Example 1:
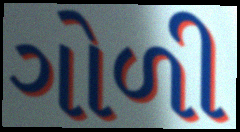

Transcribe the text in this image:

ગોળી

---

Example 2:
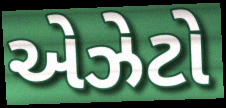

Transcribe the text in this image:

એઝેટો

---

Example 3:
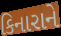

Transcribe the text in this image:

કિનારાને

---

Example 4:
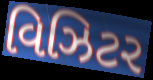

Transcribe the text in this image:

વિઝિટર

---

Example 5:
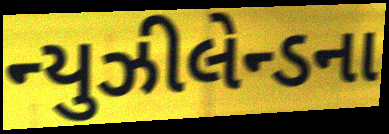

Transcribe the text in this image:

ન્યુઝીલેન્ડના